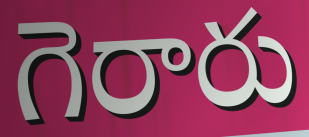
గెరారు